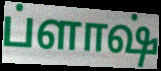
ப்ளாஷ்